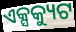
ଏକ୍ସକ୍ୟୁଟ